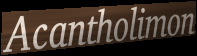
Acantholimon